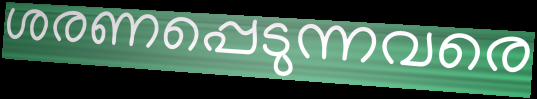
ശരണപ്പെടുന്നവരെ